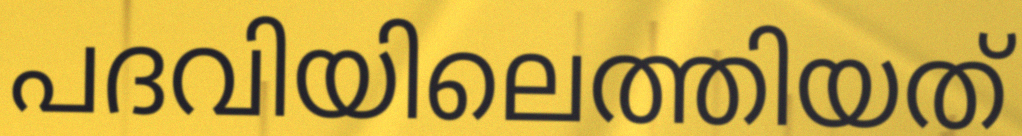
പദവിയിലെത്തിയത്